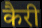
कैरी